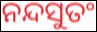
ନନ୍ଦସୁତଂ